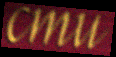
cmu